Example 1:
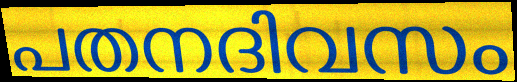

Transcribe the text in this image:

പതനദിവസം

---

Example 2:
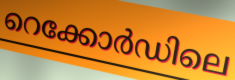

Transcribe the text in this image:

റെക്കോർഡിലെ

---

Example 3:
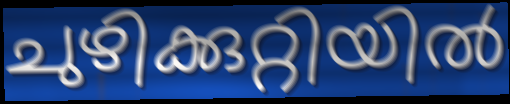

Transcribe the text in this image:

ചുഴിക്കുറ്റിയിൽ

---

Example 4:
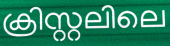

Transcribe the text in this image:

ക്രിസ്റ്റലിലെ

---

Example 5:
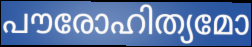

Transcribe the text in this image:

പൗരോഹിത്യമോ